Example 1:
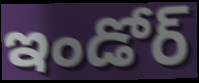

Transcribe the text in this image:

ఇండోర్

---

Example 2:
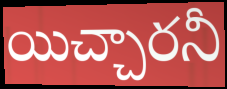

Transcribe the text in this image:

యిచ్చారనీ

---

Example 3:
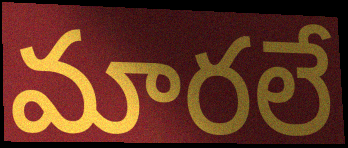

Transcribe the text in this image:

మారలే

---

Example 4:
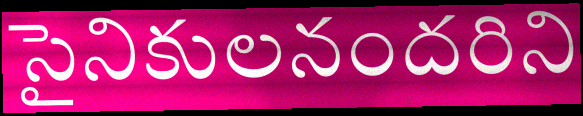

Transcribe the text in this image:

సైనికులనందరిని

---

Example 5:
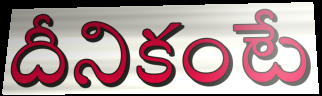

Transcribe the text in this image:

దీనికంటే